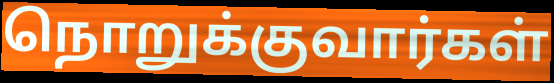
நொறுக்குவார்கள்